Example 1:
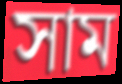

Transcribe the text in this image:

সাম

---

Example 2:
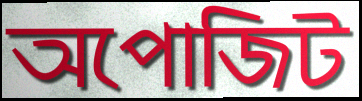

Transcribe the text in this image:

অপোজিট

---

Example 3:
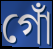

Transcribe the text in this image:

গোঁ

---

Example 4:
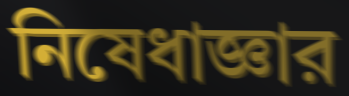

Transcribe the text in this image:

নিষেধাজ্ঞার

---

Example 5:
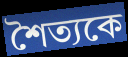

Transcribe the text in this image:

শৈত্যকে